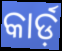
କାର୍ଡ଼